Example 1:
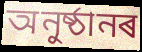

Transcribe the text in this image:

অনুষ্ঠানৰ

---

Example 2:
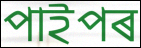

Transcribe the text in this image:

পাইপৰ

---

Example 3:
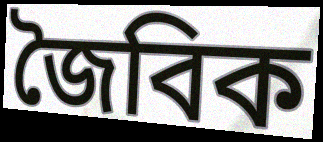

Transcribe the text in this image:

জৈবিক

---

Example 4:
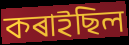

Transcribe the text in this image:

কৰাইছিল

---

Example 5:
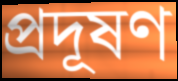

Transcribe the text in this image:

প্ৰদূষণ